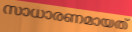
സാധാരണമായത്